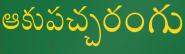
ఆకుపచ్చరంగు